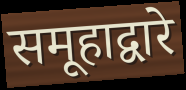
समूहाद्वारे